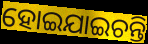
ହୋଇଯାଇଚନ୍ତି